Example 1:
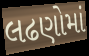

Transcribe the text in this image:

લઢણોમાં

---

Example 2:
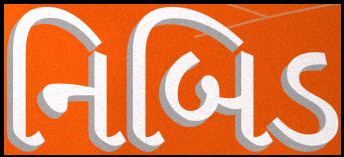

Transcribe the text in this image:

નિબિડ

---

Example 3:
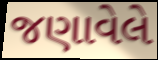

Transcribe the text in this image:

જણાવેલે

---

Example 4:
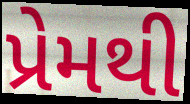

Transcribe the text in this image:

પ્રેમથી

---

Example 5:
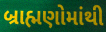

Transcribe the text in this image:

બ્રાહ્મણોમાંથી